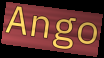
Ango